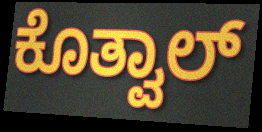
ಕೊತ್ವಾಲ್